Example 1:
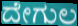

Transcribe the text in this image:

ದೇಗುಲ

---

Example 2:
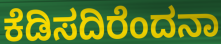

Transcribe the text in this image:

ಕೆಡಿಸದಿರೆಂದನಾ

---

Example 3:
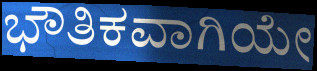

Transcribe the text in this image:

ಭೌತಿಕವಾಗಿಯೇ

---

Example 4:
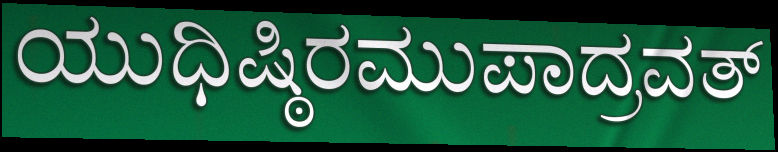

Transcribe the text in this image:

ಯುಧಿಷ್ಠಿರಮುಪಾದ್ರವತ್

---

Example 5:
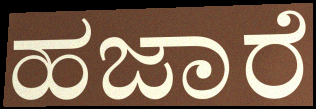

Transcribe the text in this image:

ಹಜಾರೆ